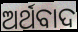
ଅର୍ଥବାଦ